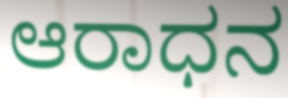
ಆರಾಧನ